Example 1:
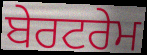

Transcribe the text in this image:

ਬੇਰਟਰੇਮ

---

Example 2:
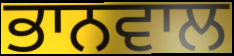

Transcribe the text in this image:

ਭਾਨਵਾਲ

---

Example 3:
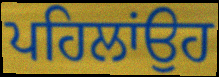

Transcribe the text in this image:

ਪਹਿਲਾਂਉਹ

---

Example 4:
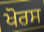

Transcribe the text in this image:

ਖੋਰਸ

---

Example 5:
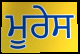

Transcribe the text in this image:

ਮੂਰੇਸ